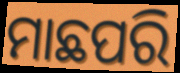
ମାଛପରି